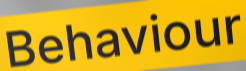
Behaviour